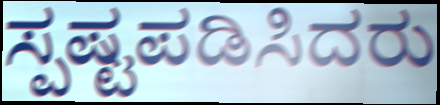
ಸ್ಪಷ್ಟಪಡಿಸಿದರು